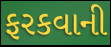
ફરકવાની